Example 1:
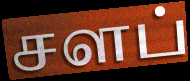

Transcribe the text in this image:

சளப்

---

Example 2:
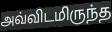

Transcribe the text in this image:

அவ்விடமிருந்த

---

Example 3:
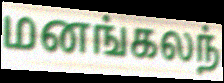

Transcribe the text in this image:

மனங்கலந்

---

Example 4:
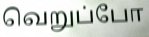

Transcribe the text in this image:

வெறுப்போ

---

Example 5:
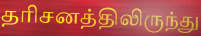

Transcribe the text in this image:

தரிசனத்திலிருந்து